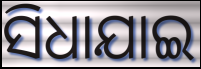
ସିଧାଯାଇ